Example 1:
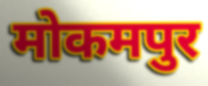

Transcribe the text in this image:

मोकमपुर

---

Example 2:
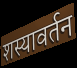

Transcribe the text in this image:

शस्यावर्तन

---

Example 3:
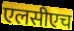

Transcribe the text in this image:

एलसीएच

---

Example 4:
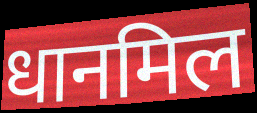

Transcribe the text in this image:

धानमिल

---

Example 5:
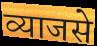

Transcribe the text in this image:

व्याजसे